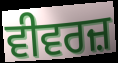
ਵੀਵਰਜ਼